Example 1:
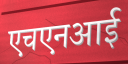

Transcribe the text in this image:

एचएनआई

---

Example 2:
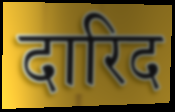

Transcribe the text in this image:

दारिद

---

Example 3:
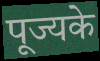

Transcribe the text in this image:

पूज्यके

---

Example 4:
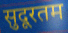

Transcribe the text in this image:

सुदूरतम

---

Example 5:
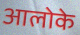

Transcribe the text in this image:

आलोके